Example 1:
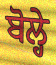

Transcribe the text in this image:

ਬੋਲ੍ਹੇ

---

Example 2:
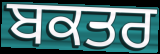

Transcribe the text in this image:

ਬਕਤਰ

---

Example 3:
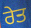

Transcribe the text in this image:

ਰੇਤ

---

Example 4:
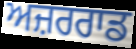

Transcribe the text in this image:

ਅਜ਼ਰਰਾਡ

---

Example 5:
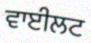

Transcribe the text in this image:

ਵਾਈਲਟ